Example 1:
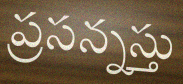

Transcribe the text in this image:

ప్రసన్నస్తు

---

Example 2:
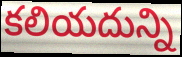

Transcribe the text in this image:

కలియదున్ని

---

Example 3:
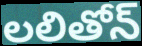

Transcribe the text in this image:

లలితోన్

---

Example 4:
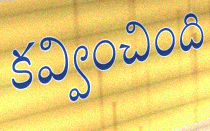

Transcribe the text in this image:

కవ్వించింది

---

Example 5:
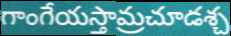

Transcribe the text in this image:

గాంగేయస్తామ్రచూడశ్చ